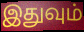
இதுவும்